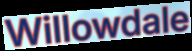
Willowdale